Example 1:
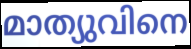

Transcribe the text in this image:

മാത്യുവിനെ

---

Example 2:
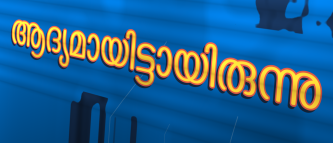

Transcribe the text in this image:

ആദ്യമായിട്ടായിരുന്നു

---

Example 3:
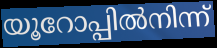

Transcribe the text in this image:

യൂറോപ്പിൽനിന്ന്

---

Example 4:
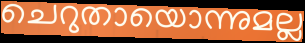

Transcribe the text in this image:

ചെറുതായൊന്നുമല്ല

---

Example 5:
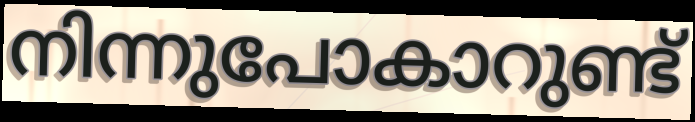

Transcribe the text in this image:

നിന്നുപോകാറുണ്ട്